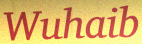
Wuhaib